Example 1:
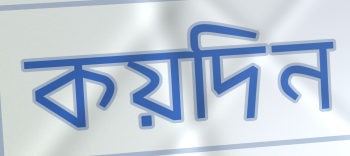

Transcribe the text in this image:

কয়দিন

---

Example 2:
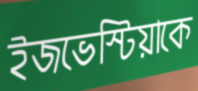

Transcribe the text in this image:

ইজভেস্টিয়াকে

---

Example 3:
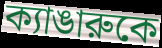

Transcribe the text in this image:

ক্যাঙারুকে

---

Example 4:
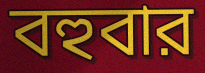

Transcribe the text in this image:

বহুবার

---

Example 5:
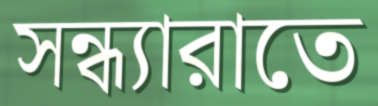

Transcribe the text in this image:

সন্ধ্যারাতে